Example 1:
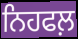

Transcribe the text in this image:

ਨਿਹਫਲ਼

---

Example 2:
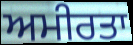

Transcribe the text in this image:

ਅਮੀਰਤਾ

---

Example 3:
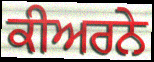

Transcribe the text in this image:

ਕੀਅਰਨੇ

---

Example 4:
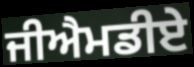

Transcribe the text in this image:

ਜੀਐਮਡੀਏ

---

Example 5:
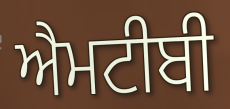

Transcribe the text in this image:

ਐਮਟੀਬੀ